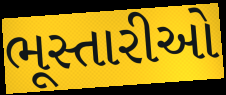
ભૂસ્તારીઓ